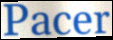
Pacer